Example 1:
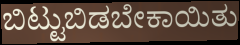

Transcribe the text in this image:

ಬಿಟ್ಟುಬಿಡಬೇಕಾಯಿತು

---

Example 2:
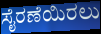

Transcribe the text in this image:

ಸೈರಣೆಯಿರಲು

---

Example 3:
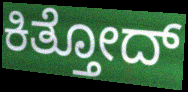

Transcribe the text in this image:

ಕಿತ್ತೋದ್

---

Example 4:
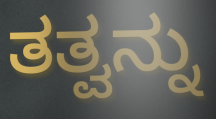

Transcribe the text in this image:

ತತ್ವನ್ನು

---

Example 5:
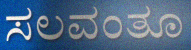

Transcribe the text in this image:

ಸಲವಂತೂ